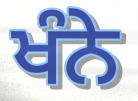
ਖੰਨੇ